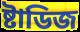
ষ্টাডিজ